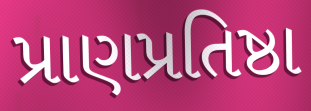
પ્રાણપ્રતિષ્ઠા